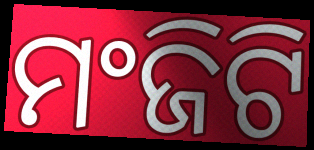
ମଂଜିଟି